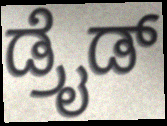
ಡ್ರೈಡ್